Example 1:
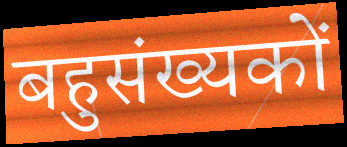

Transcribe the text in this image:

बहुसंख्यकों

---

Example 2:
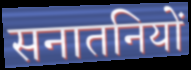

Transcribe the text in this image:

सनातनियों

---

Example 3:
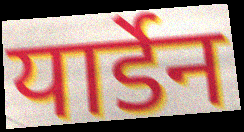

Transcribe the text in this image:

यार्डेन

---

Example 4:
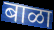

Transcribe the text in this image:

बाळा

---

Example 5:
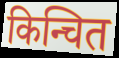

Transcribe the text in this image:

किन्चित